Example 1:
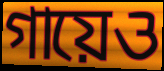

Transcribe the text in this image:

গায়েও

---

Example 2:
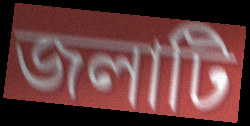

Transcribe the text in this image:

জলাটি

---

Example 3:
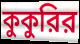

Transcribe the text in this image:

কুকুরির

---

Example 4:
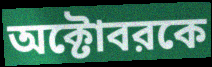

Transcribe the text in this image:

অক্টোবরকে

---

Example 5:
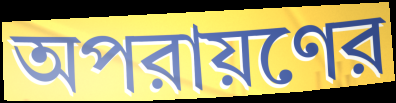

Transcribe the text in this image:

অপরায়ণের